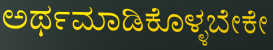
ಅರ್ಥಮಾಡಿಕೊಳ್ಳಬೇಕೇ